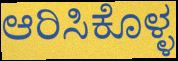
ಆರಿಸಿಕೊಳ್ಳ